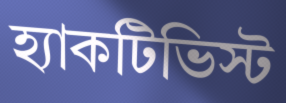
হ্যাকটিভিস্ট